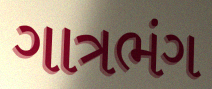
ગાત્રભંગ